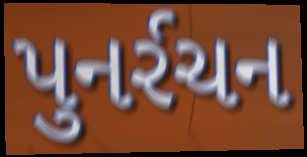
પુનર્રચન